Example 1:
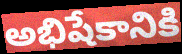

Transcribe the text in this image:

అభిషేకానికి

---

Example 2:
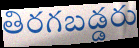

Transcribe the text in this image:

తిరగబడ్డరు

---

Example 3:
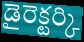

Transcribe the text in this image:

డైరెక్టర్కి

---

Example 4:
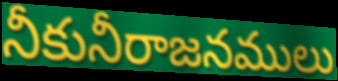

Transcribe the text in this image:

నీకునీరాజనములు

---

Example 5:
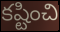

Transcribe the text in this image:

కష్టించి